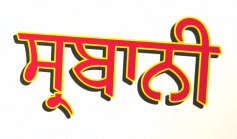
ਸ੍ਰਬਾਨੀ